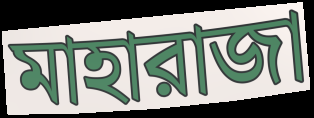
মাহারাজা